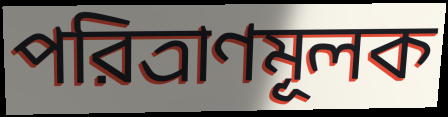
পরিত্রাণমূলক